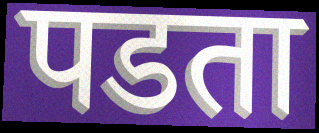
पडता